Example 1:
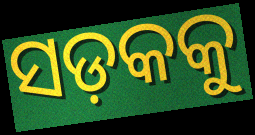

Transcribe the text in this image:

ସଡ଼କକୁ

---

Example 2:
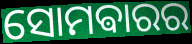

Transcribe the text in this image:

ସୋମଵାରର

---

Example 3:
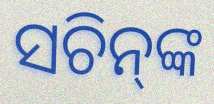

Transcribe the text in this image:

ସଚିନ୍‌ଙ୍କ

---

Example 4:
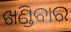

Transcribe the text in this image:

ଖଣ୍ଡିବାର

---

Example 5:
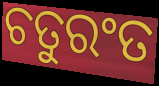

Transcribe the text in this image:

ଚତୁରଂତ